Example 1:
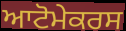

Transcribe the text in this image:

ਆਟੋਮੇਕਰਸ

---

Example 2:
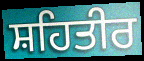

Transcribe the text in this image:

ਸ਼ਹਿਤੀਰ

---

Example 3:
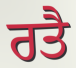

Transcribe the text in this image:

ਰਤੈ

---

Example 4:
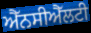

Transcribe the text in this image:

ਐੱਨਸੀਐੱਲਟੀ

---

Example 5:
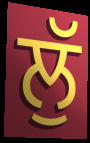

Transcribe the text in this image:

ਲੁੱ